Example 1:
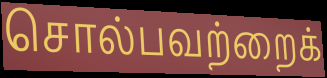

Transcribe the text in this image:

சொல்பவற்றைக்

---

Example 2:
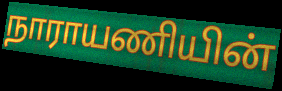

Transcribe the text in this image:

நாராயணியின்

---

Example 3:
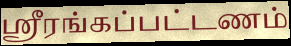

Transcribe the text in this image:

ஸ்ரீரங்கப்பட்டணம்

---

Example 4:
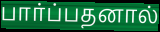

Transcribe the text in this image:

பார்ப்பதனால்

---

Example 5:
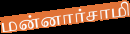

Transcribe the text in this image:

மன்னார்சாமி